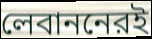
লেবাননেরই